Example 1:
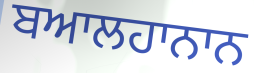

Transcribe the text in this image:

ਬਆਲਹਾਨਾਨ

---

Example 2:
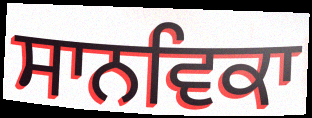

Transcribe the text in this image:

ਸਾਨਵਿਕਾ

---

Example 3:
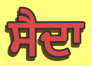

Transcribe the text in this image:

ਸੈਦਾ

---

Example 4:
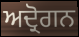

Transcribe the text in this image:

ਅਦ੍ਰੋਗਨ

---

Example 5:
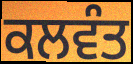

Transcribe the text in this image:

ਕਲਵੰਤ